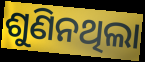
ଶୁଣିନଥିଲା